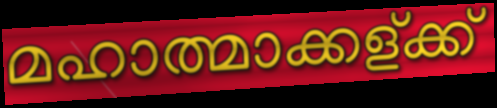
മഹാത്മാക്കള്ക്ക്